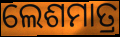
ଲେଶମାତ୍ର